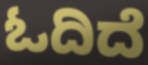
ಓದಿದೆ